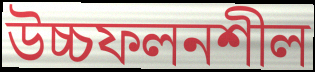
উচ্চফলনশীল